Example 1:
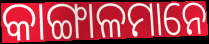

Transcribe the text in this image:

କାଙ୍ଗାଳମାନେ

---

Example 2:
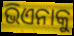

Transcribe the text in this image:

ଭିଏନାକୁ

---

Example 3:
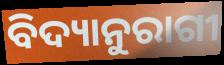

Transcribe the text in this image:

ବିଦ୍ୟାନୁରାଗୀ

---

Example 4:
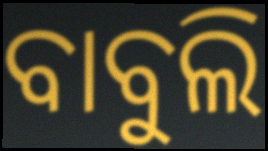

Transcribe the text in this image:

ବାବୁଲି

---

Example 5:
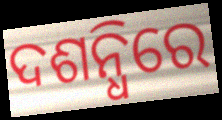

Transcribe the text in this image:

ଦଶନ୍ଧିରେ